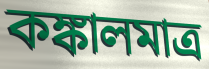
কঙ্কালমাত্র